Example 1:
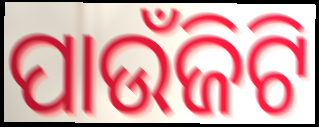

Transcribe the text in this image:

ପାଉଁଜିଟି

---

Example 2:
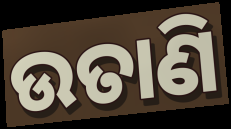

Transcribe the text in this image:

ଉତାଣି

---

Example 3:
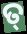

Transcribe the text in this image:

ତ୍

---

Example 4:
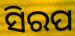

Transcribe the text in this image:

ସିରପ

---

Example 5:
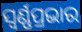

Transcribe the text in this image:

ସ୍ୱର୍ଣ୍ଣପ୍ରଭାର